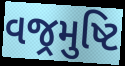
વજ્રમુષ્ટિ